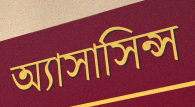
অ্যাসাসিন্স